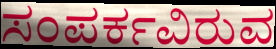
ಸಂಪರ್ಕವಿರುವ